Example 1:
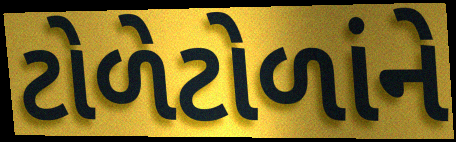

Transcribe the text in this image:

ટોળેટોળાંને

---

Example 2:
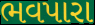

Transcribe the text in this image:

ભવપારા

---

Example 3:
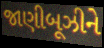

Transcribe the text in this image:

જાણીબૂઝીને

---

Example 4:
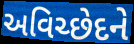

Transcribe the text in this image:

અવિચ્છેદને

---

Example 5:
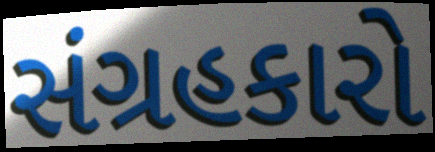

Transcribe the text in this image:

સંગ્રહકારો